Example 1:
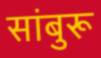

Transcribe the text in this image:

सांबुरू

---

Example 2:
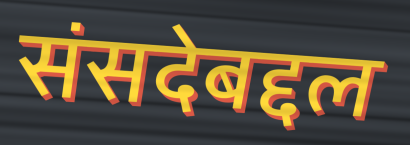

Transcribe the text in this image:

संसदेबद्दल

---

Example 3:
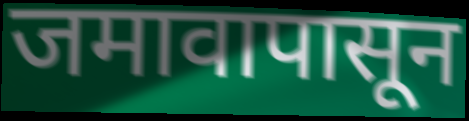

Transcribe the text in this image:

जमावापासून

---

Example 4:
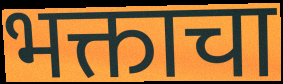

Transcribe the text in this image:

भक्ताचा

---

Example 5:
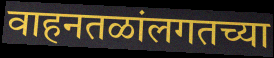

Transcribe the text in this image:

वाहनतळांलगतच्या